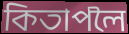
কিতাপলৈ